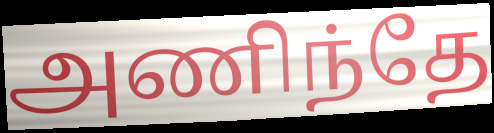
அணிந்தே